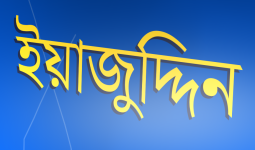
ইয়াজুদ্দিন